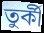
তুৰ্কী